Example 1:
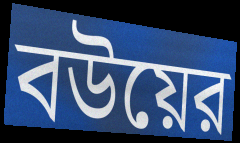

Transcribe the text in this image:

বউয়ের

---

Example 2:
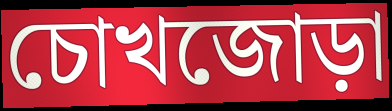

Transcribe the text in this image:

চোখজোড়া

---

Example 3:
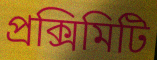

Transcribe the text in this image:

প্রক্সিমিটি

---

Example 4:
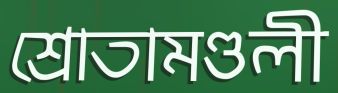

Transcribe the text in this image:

শ্রোতামণ্ডলী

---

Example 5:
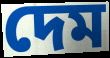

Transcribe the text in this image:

দেম